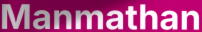
Manmathan